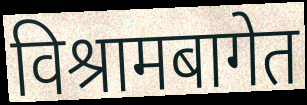
विश्रामबागेत